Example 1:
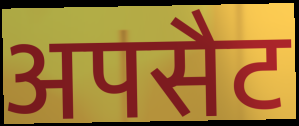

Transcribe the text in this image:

अपसैट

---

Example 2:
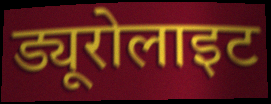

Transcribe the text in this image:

ड्यूरोलाइट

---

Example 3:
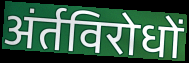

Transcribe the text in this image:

अंर्तविरोधों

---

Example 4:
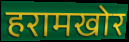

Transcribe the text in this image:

हरामखोर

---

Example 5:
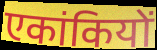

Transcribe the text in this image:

एकांकियों